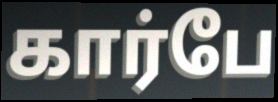
கார்பே